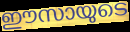
ഈസായുടെ